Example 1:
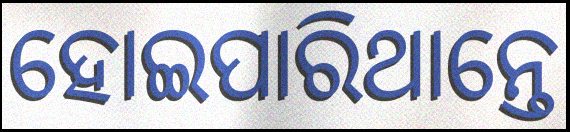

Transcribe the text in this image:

ହୋଇପାରିଥାନ୍ତେ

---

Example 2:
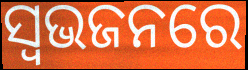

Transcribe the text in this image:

ସ୍ଵଭଜନରେ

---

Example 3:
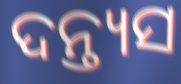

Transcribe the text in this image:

ଦନ୍ତ୍ୟସ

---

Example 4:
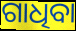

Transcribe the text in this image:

ଗାଧିବା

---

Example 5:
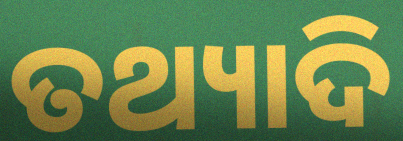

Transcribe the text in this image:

ତଥ୍ୟାଦି